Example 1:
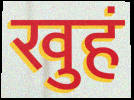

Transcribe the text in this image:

खुहं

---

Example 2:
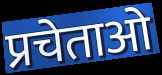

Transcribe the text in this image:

प्रचेताओ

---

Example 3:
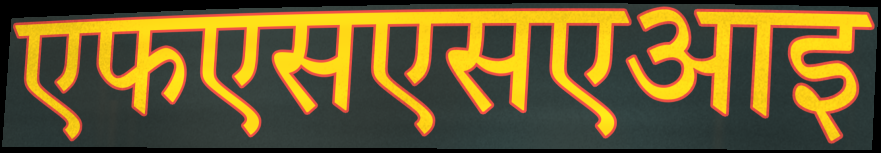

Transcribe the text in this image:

एफएसएसएआइ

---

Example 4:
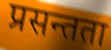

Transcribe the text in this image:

प्रसन्तता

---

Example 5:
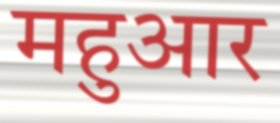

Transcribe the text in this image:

महुआर